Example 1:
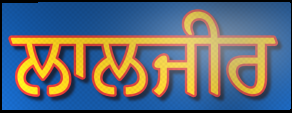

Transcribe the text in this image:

ਲਾਲਜੀਰ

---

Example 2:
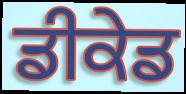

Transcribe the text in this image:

ਡੀਕੇਡ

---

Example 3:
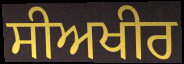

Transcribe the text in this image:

ਸੀਅਖੀਰ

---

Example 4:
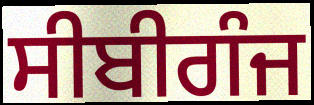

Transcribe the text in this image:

ਸੀਬੀਗੰਜ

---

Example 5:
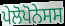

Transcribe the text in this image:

ਪੇਲੋਪੋਨੇਸਸ